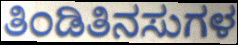
ತಿಂಡಿತಿನಸುಗಳ